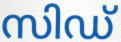
സിഡ്